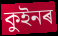
কুইনৰ